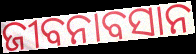
ଜୀବନାବସାନ